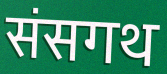
संसगथ